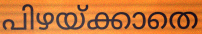
പിഴയ്ക്കാതെ